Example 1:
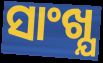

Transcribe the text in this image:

ସାଂଖ୍ଯ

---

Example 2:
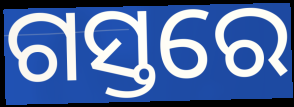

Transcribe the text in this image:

ଗସ୍ତରେ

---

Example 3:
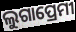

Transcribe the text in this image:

ଲୁଗାପ୍ରେମୀ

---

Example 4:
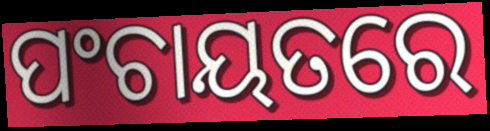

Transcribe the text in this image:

ପଂଚାୟତରେ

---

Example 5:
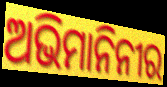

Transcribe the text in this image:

ଅଭିମାନିନୀର